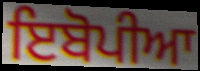
ਇਬੋਪੀਆ